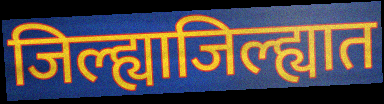
जिल्ह्याजिल्ह्यात